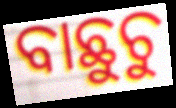
ବାଛୁଚୁ